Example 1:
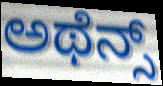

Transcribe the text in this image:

ಅಥೆನ್ಸ್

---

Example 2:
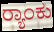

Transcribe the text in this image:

ರ್‍ಯಾಂಕು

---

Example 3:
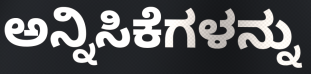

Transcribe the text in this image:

ಅನ್ನಿಸಿಕೆಗಳನ್ನು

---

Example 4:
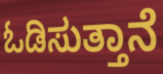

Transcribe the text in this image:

ಓಡಿಸುತ್ತಾನೆ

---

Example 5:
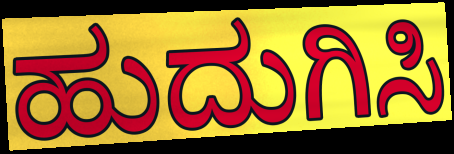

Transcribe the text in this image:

ಹುದುಗಿಸಿ